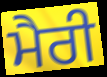
ਮੈਰੀ